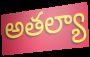
అతల్యా